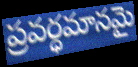
ప్రవర్ధమానమై